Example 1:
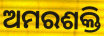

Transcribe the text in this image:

ଅମରଶକ୍ତି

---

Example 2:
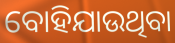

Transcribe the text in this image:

ବୋହିଯାଉଥିବା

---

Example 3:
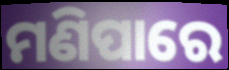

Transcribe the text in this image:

ମଣିପାରେ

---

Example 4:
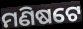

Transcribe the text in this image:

ମଣିଷଟେ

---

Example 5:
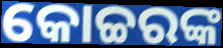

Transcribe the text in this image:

କୋଚ୍ଚରଙ୍କ